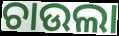
ଚାଉଲା